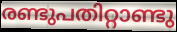
രണ്ടുപതിറ്റാണ്ടു